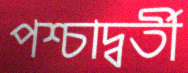
পশ্চাদ্বর্তী